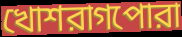
খোশরাগপোরা